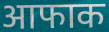
आफाक